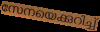
സേനയെക്കുറിച്ച്